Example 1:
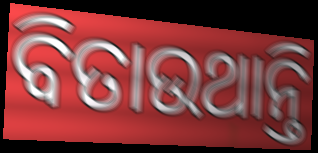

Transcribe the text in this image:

ବିତାଉଥାନ୍ତି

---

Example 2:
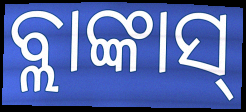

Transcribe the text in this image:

ବ୍ଲାଙ୍କାସ୍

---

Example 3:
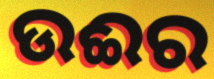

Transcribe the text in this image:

ଉଈର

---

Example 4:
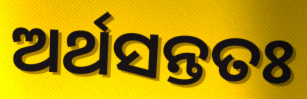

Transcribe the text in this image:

ଅର୍ଥସନ୍ତତଃ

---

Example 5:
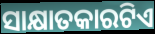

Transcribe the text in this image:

ସାକ୍ଷାତକାରଟିଏ